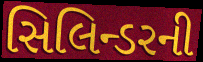
સિલિન્ડરની